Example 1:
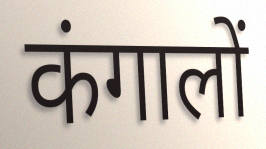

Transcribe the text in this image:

कंगालों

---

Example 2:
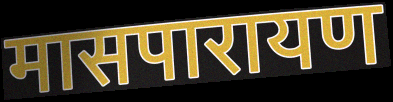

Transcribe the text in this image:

मासपारायण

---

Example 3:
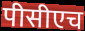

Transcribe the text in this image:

पीसीएच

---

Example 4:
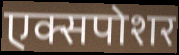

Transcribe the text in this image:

एक्सपोशर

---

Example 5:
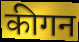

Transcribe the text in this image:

कीगन